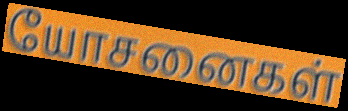
யோசனைகள்